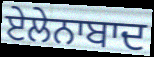
ਏਲੇਨਾਬਾਦ